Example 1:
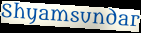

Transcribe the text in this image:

Shyamsundar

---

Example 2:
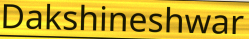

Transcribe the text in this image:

Dakshineshwar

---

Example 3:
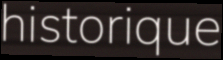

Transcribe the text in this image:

historique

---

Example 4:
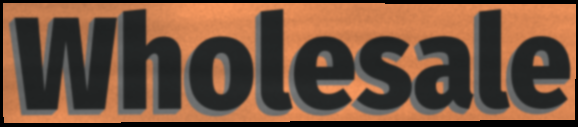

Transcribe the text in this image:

Wholesale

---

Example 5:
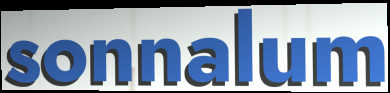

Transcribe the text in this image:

sonnalum